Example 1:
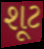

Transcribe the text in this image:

શૂટ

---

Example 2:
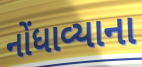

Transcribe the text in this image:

નોંધાવ્યાના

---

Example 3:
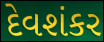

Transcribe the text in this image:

દેવશંકર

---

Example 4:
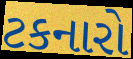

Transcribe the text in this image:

ટકનારો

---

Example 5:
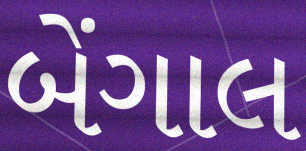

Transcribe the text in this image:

બેંગાલ